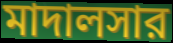
মাদালসার